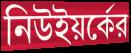
নিউইয়র্কের